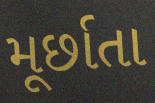
મૂર્છાતા